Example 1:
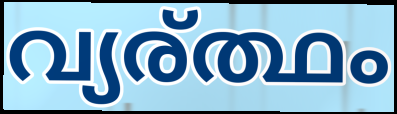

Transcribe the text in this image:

വ്യര്ത്ഥം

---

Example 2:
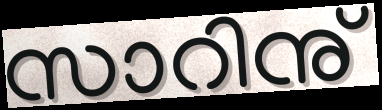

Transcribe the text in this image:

സാറിനു്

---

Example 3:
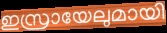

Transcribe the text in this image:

ഇസ്രായേലുമായി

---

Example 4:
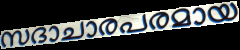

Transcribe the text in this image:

സദാചാരപരമായ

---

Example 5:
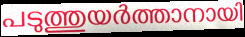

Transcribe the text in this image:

പടുത്തുയർത്താനായി